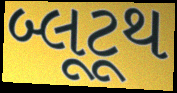
બ્લૂટૂથ